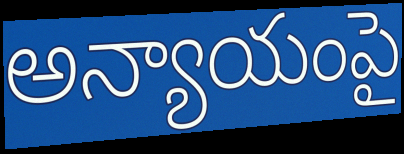
అన్యాయంపై